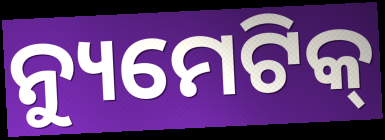
ନ୍ୟୁମେଟିକ୍